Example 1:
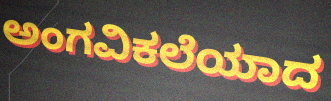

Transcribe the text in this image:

ಅಂಗವಿಕಲೆಯಾದ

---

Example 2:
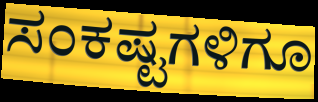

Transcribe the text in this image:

ಸಂಕಷ್ಟಗಳಿಗೂ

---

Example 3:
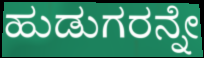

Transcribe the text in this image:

ಹುಡುಗರನ್ನೇ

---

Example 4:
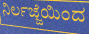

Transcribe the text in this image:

ನಿರ್ಲಜ್ಜೆಯಿಂದ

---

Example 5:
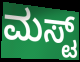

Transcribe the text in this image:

ಮಸ್ಟ್